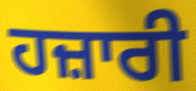
ਹਜ਼ਾਰੀ